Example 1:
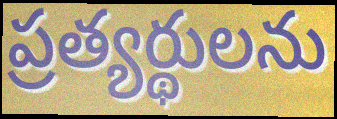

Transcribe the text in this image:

ప్రత్యర్థులను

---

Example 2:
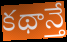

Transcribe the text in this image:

కథాన్తే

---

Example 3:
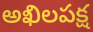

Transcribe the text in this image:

అఖిలపక్ష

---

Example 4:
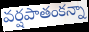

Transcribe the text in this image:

వర్షపాతంకన్నా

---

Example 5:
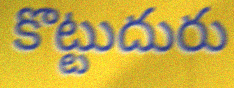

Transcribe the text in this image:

కొట్టుదురు